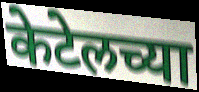
केटेलच्या